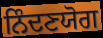
ਨਿੰਦਣਯੋਗ